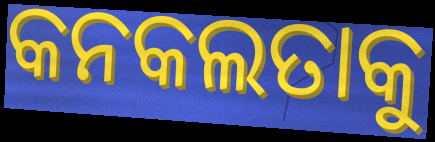
କନକଲତାକୁ